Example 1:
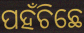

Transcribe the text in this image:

ପହଁଚିଛେ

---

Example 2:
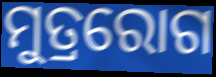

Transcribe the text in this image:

ମୁତ୍ରରୋଗ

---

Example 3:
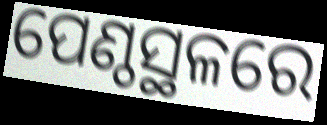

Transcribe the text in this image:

ପେଣ୍ଠସ୍ଥଳରେ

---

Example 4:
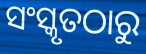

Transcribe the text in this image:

ସଂସ୍କୃତଠାରୁ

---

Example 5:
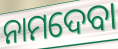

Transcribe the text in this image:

ନାମଦେବା